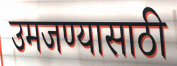
उमजण्यासाठी